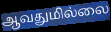
ஆவதுமில்லை